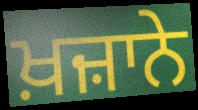
ਖ਼ਜ਼ਾਨੇ